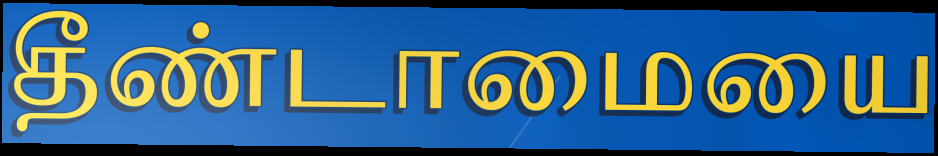
தீண்டாமையை